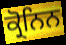
ਕ੍ਰੋਨਿਨ